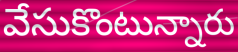
వేసుకొంటున్నారు